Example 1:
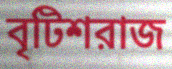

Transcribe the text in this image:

বৃটিশরাজ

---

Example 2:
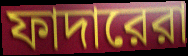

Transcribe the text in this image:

ফাদারেরা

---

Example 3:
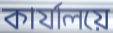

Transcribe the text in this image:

কার্যালয়ে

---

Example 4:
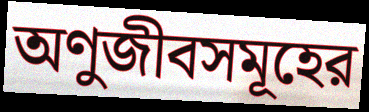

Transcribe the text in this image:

অণুজীবসমূহের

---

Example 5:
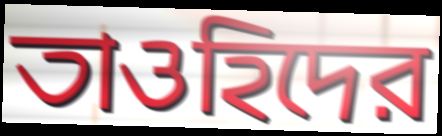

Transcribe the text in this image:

তাওহিদের